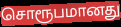
சொரூபமானது